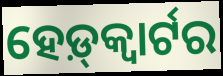
ହେଡ଼୍‌କ୍ୱାର୍ଟର